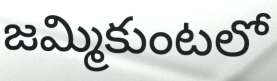
జమ్మికుంటలో